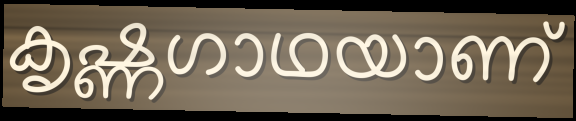
കൃഷ്ണഗാഥയാണ്